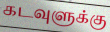
கடவுளுக்கு